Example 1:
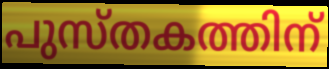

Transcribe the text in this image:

പുസ്തകത്തിന്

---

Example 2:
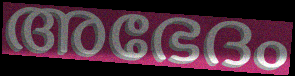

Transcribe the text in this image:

അഭേദം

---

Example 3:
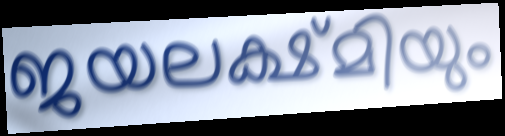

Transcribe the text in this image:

ജയലക്ഷ്മിയും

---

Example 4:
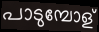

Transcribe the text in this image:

പാടുമ്പോള്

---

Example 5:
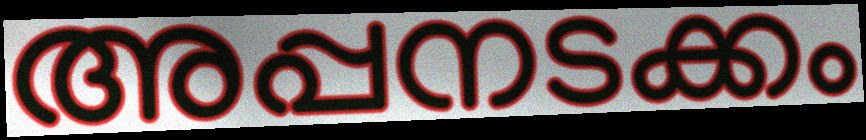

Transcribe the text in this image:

അപ്പനടക്കം